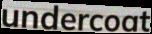
undercoat